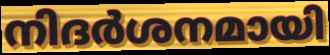
നിദർശനമായി